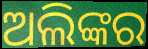
ଅଲିଙ୍କର